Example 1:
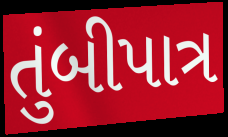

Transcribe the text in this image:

તુંબીપાત્ર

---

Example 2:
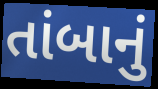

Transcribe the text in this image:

તાંબાનું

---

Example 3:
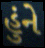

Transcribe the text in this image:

હુંને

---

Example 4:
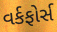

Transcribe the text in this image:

વર્કફોર્સ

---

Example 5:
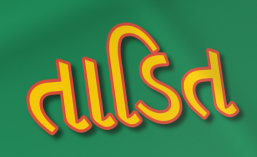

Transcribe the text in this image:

તાડિત